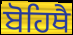
ਬੋਹਿਥੈ